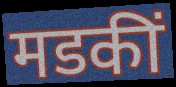
मडकीं